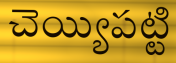
చెయ్యిపట్టి